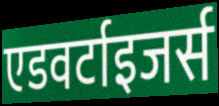
एडवर्टाइजर्स